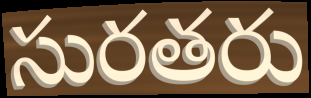
సురతరు